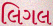
લિગલ